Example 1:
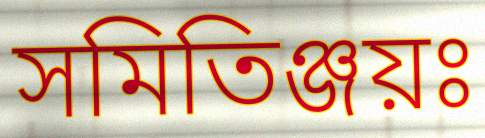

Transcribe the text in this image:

সমিতিঞ্জয়ঃ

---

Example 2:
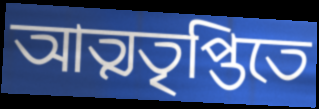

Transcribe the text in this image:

আত্মতৃপ্তিতে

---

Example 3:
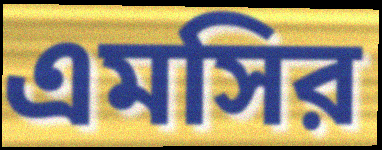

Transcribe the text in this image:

এমসির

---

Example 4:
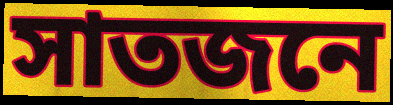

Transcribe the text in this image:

সাতজনে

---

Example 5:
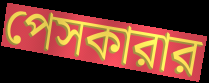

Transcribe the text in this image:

পেসকারার